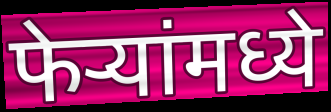
फेऱ्यांमध्ये